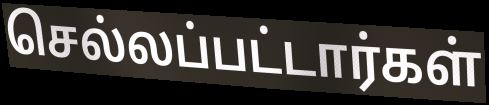
செல்லப்பட்டார்கள்